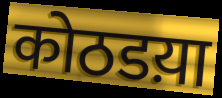
कोठडय़ा